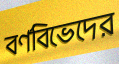
বর্ণবিভেদের